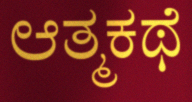
ಆತ್ಮಕಥೆ